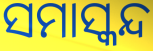
ସମାସ୍କନ୍ଦ